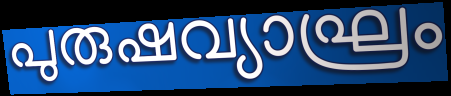
പുരുഷവ്യാഘ്രം